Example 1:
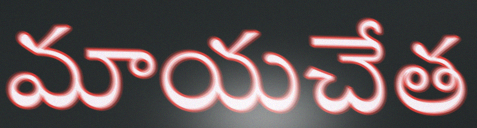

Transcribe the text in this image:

మాయచేత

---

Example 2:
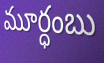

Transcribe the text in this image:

మూర్ధంబు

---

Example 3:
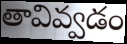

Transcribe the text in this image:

తావివ్వడం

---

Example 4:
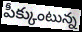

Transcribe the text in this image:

పీక్కుంటున్న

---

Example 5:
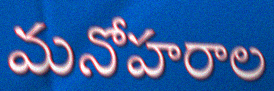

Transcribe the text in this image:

మనోహరాల